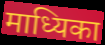
माध्यिका